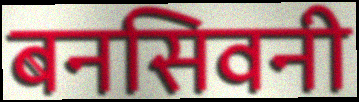
बनसिवनी